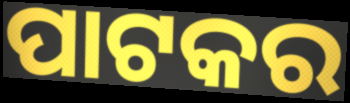
ପାଟକର